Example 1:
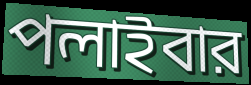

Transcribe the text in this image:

পলাইবার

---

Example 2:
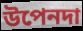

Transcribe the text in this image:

উপেনদা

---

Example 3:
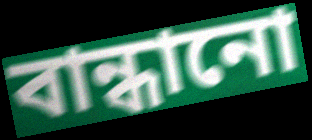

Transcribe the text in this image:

বান্ধানো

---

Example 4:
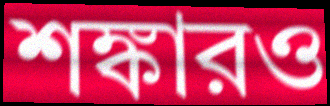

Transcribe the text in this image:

শঙ্কারও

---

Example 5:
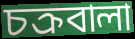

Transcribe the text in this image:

চক্রবালা